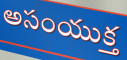
అసంయుక్త